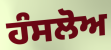
ਹੰਸਲੋਅ